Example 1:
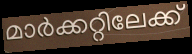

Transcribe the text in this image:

മാർക്കറ്റിലേക്ക്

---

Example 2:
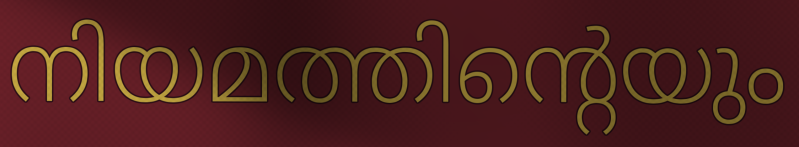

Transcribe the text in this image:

നിയമത്തിന്റെയും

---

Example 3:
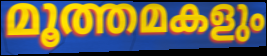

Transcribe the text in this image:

മൂത്തമകളും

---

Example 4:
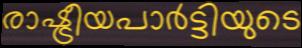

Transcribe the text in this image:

രാഷ്ട്രീയപാർട്ടിയുടെ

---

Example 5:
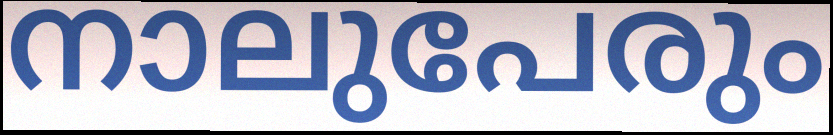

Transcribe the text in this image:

നാലുപേരും